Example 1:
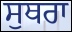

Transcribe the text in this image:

ਸੁਥਰਾ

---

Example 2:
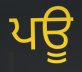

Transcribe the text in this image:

ਪਊ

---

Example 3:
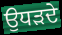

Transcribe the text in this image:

ਉਧੜਦੇ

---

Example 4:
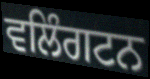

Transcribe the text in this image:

ਵਲਿੰਗਟਨ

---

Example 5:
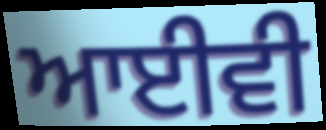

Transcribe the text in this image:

ਆਈਵੀ